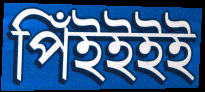
পিঁইইইই